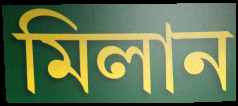
মিলান